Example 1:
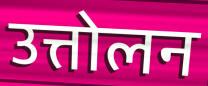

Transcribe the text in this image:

उत्तोलन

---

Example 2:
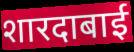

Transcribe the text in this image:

शारदाबाई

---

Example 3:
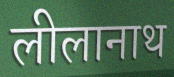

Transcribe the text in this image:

लीलानाथ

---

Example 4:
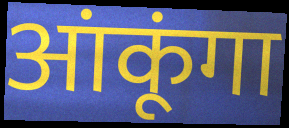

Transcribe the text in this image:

आंकूंगा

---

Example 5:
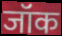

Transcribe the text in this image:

जॉक